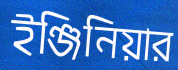
ইঞ্জিনিয়ার